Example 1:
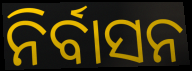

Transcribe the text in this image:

ନିର୍ବାସନ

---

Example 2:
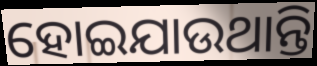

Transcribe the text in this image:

ହୋଇଯାଉଥାନ୍ତି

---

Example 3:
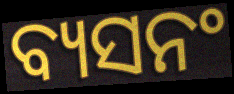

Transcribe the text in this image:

ବ୍ୟସନଂ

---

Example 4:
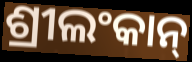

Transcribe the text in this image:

ଶ୍ରୀଲଂକାନ୍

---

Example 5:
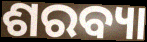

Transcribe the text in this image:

ଶରବ୍ୟା